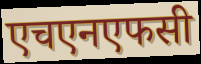
एचएनएफसी